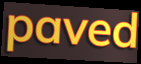
paved